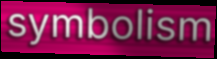
symbolism